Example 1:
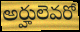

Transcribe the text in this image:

అర్హులెవరో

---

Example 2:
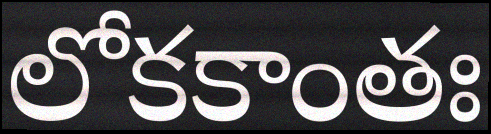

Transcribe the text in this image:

లోకకాంతః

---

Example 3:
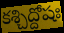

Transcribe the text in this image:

కశ్చిద్దోషః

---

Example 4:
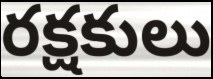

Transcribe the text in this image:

రక్షకులు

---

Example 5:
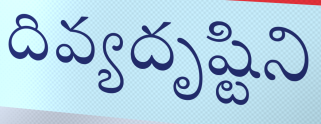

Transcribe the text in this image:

దివ్యదృష్టిని